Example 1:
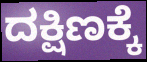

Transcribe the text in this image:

ದಕ್ಷಿಣಕ್ಕೆ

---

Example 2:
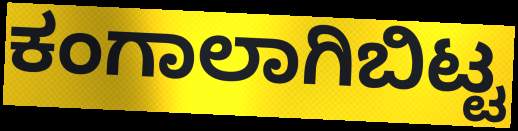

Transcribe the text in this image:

ಕಂಗಾಲಾಗಿಬಿಟ್ಟ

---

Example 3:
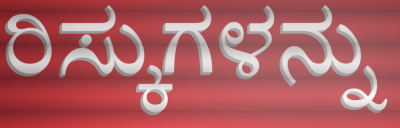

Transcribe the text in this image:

ರಿಸ್ಕುಗಳನ್ನು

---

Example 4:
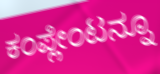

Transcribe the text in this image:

ಕಂಪ್ಲೇಂಟನ್ನೂ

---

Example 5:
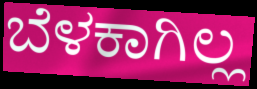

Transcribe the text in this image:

ಬೆಳಕಾಗಿಲ್ಲ